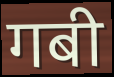
गबी